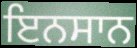
ਇਨਸਾਨ